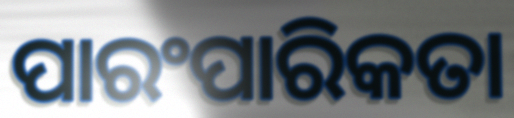
ପାରଂପାରିକତା